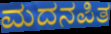
ಮದನಪಿತ